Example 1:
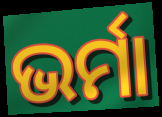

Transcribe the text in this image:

ଭର୍ମା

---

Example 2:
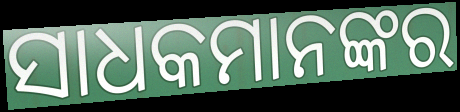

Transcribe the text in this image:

ସାଧକମାନଙ୍କର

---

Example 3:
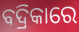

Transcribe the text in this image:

ବଦ୍ରିକାରେ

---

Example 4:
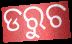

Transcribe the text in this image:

ଡରୁଚ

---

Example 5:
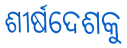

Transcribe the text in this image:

ଶୀର୍ଷଦେଶକୁ